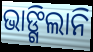
ଭାଙ୍ଗିଲାନି